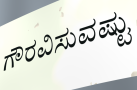
ಗೌರವಿಸುವಷ್ಟು